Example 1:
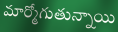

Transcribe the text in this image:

మార్మోగుతున్నాయి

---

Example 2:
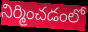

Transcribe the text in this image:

నిర్మించడంలో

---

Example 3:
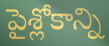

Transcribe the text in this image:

పైశ్లోకాన్ని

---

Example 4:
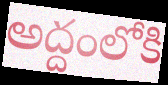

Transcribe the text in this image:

అద్దంలోకి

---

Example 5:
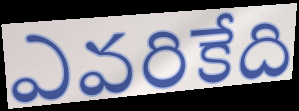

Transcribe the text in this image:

ఎవరికేది